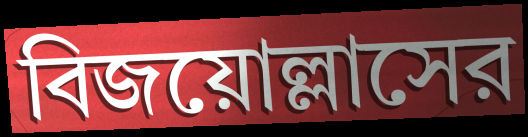
বিজয়োল্লাসের